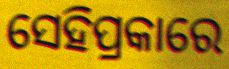
ସେହିପ୍ରକାରେ